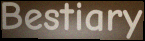
Bestiary